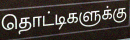
தொட்டிகளுக்கு